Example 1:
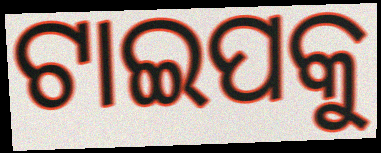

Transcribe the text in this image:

ଟାଇପକୁ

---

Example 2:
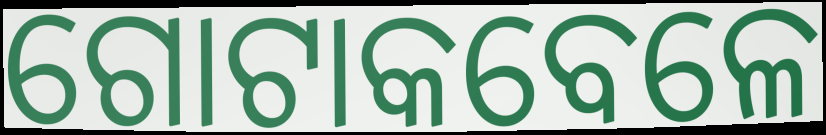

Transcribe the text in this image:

ଗୋଟାକବେଳେ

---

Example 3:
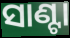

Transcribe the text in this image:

ସାଣ୍ଟା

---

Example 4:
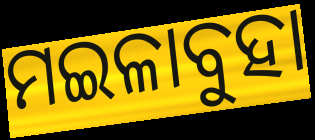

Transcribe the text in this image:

ମଇଳାବୁହା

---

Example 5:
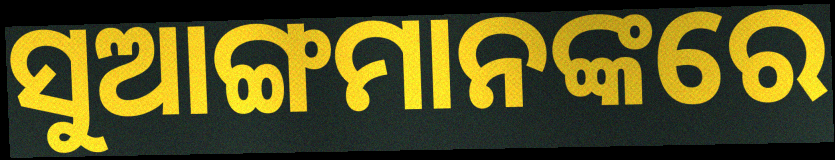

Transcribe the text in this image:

ସୁଆଙ୍ଗମାନଙ୍କରେ